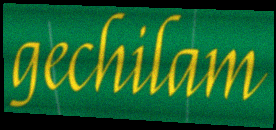
gechilam